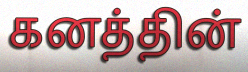
கனத்தின்